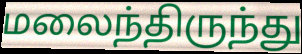
மலைந்திருந்து